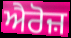
ਐਰੋਜ਼